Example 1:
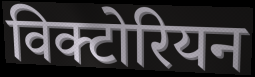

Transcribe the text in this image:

विक्टोरियन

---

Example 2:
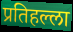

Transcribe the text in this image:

प्रतिहल्ला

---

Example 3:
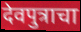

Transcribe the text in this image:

देवपुत्राचा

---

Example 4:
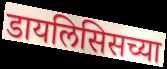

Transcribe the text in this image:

डायलिसिसच्या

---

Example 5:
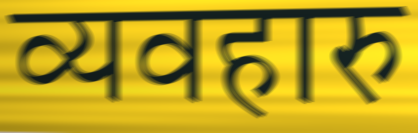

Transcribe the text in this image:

व्यवहारु